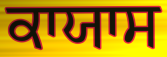
ਕਾਯਾਸ